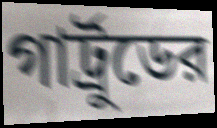
গার্ট্রুডের